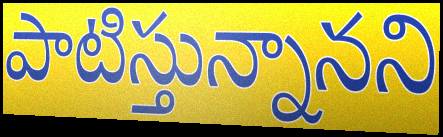
పాటిస్తున్నానని